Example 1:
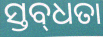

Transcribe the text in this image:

ସ୍ତବ୍‌ଧତା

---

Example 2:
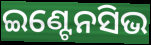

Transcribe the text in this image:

ଇଣ୍ଟେନସିଭ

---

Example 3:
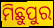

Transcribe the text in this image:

ମିଛୁପୁର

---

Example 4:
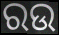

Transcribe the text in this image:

ରଉ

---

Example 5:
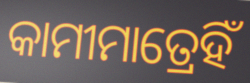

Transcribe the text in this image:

କାମୀମାତ୍ରେହିଁ